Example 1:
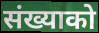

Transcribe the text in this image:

संख्याको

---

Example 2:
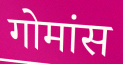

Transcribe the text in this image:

गोमांस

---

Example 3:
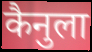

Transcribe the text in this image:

कैनुला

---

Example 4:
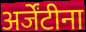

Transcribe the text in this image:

अर्जेंटीना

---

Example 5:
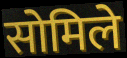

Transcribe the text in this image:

सोमिले